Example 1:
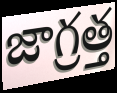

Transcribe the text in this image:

జాగ్రత్త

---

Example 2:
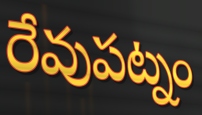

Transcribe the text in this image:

రేవుపట్నం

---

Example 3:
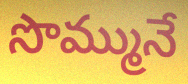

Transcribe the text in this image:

సొమ్మునే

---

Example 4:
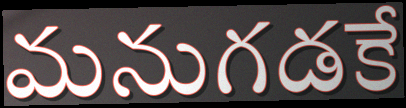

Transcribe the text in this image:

మనుగడకే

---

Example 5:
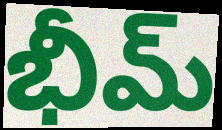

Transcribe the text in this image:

భీమ్